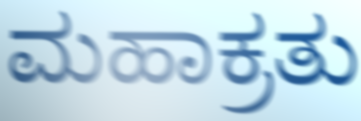
ಮಹಾಕ್ರತು